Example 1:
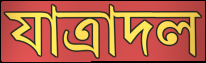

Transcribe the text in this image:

যাত্রাদল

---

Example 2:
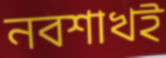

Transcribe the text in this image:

নবশাখই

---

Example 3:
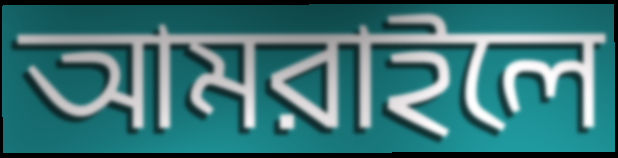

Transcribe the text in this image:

আমরাইলে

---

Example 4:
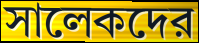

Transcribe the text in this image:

সালেকদের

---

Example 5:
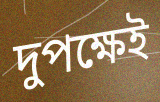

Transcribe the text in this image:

দুপক্ষেই